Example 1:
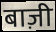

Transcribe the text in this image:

बाज़ी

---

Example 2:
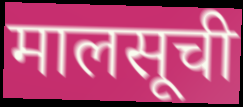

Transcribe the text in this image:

मालसूची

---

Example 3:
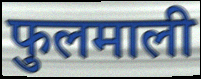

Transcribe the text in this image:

फुलमाली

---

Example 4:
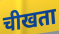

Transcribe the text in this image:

चीखता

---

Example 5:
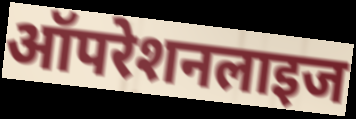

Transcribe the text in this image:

ऑपरेशनलाइज